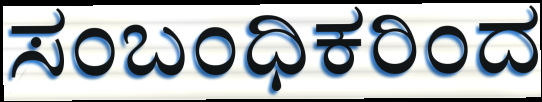
ಸಂಬಂಧಿಕರಿಂದ